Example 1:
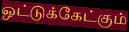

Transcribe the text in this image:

ஒட்டுக்கேட்கும்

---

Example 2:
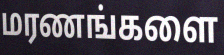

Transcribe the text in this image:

மரணங்களை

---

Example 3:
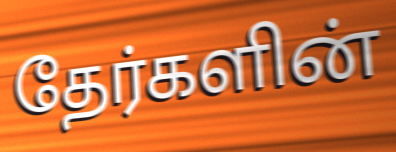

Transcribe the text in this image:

தேர்களின்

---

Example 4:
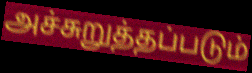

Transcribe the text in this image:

அச்சுறுத்தப்படும்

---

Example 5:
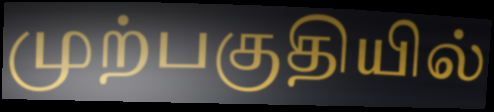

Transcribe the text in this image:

முற்பகுதியில்